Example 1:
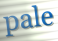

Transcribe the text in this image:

pale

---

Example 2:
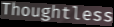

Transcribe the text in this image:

Thoughtless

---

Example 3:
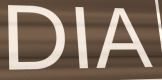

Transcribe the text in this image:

DIA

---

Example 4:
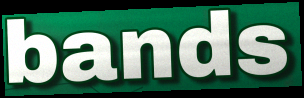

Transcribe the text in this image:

bands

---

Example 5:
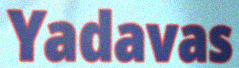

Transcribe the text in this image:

Yadavas